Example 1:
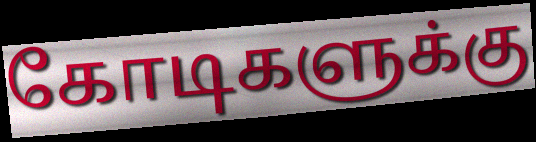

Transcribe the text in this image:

கோடிகளுக்கு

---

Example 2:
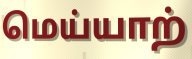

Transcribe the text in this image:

மெய்யாற்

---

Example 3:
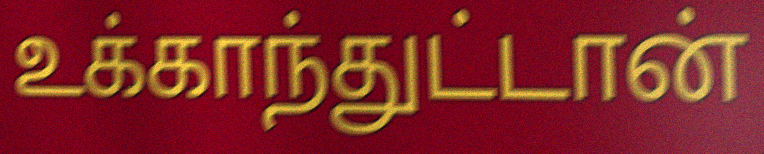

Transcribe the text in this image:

உக்காந்துட்டான்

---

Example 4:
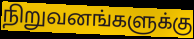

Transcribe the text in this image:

நிறுவனங்களுக்கு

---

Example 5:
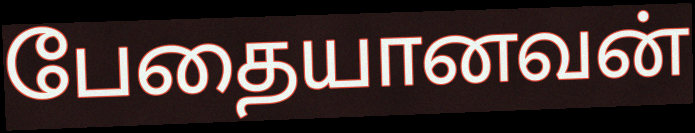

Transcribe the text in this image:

பேதையானவன்